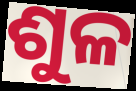
ଶୁଳ